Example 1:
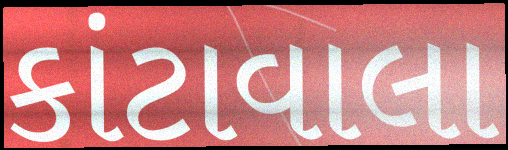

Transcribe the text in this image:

કાંટાવાલા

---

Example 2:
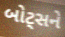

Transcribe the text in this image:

બોટ્સને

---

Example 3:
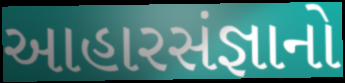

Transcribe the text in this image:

આહારસંજ્ઞાનો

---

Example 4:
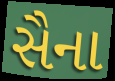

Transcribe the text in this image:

સૈના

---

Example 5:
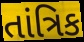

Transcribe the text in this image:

તાંત્રિક